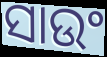
ସାଉଂ